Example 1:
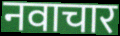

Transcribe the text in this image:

नवाचार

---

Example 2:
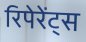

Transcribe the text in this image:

रिपेरेंट्स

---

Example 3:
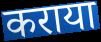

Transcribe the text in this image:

कराया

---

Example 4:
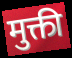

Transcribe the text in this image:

मुक्ती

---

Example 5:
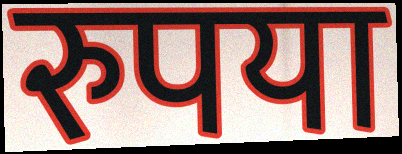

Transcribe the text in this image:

रुपया